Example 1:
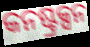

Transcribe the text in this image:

କନଷ୍ଟ୍ରକ୍ସନ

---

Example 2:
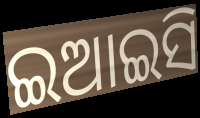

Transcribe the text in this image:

ଇଆଇସି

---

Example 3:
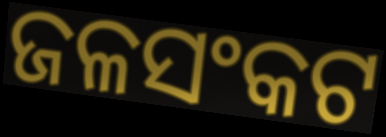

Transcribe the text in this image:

ଜଳସଂକଟ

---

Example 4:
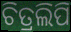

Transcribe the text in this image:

ଚିତ୍ରଲିପି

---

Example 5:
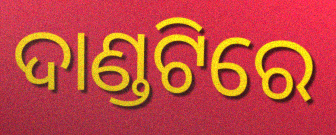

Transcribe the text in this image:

ଦାଣ୍ଡଟିରେ